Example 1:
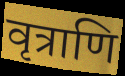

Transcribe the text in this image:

वृत्राणि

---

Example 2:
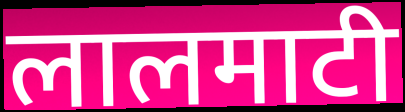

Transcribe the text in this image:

लालमाटी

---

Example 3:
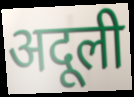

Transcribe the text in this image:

अदूली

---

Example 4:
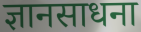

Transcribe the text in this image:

ज्ञानसाधना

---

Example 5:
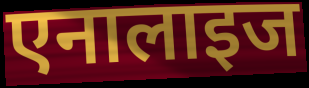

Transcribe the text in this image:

एनालाइज